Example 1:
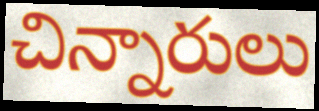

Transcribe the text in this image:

చిన్నారులు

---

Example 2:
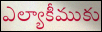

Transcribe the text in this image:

ఎల్యాకీముకు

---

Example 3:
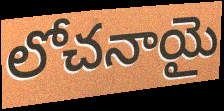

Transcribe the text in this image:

లోచనాయై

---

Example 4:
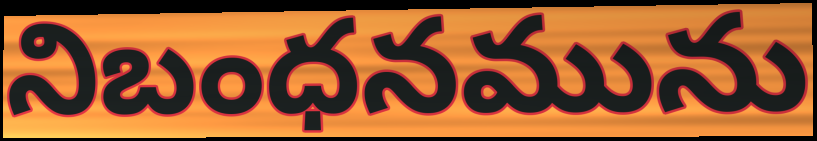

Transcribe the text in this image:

నిబంధనమును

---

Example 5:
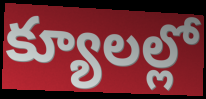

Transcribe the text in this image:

క్యూలల్లో